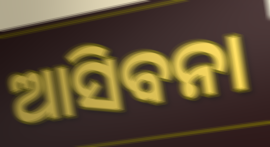
ଆସିବନା